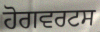
ਹੋਗਵਰਟਸ